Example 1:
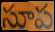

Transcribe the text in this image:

సూప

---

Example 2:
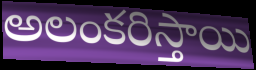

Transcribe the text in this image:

అలంకరిస్తాయి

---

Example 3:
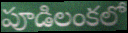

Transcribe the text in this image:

పూడిలంకలో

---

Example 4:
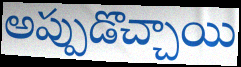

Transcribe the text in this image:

అప్పుడొచ్చాయి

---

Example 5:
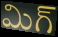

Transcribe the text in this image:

మిగ్